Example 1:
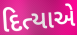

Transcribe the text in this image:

દિત્યાએ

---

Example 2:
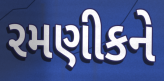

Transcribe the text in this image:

રમણીકને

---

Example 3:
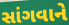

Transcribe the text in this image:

સાંગવાને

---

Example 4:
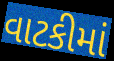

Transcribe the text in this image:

વાટકીમાં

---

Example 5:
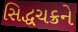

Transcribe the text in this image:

સિદ્ધચક્રને